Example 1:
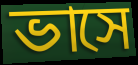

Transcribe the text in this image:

ভাসে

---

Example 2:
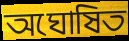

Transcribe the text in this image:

অঘোষিত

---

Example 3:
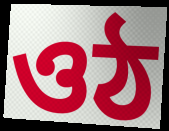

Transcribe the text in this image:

ওঠ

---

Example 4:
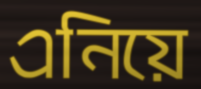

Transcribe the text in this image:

এনিয়ে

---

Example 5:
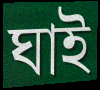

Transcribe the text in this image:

ঘাই